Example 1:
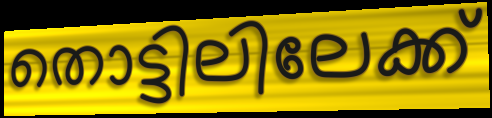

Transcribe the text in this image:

തൊട്ടിലിലേക്ക്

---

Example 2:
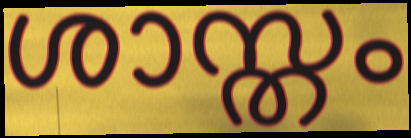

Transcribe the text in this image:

ശാസ്തം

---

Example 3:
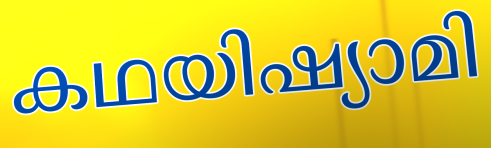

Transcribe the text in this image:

കഥയിഷ്യാമി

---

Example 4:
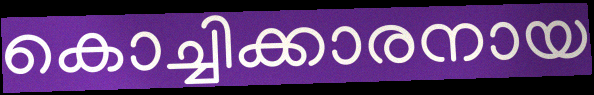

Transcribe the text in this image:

കൊച്ചിക്കാരനായ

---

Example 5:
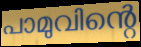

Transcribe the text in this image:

പാമുവിന്റെ